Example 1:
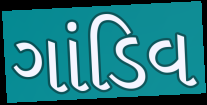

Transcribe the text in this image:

ગાંડિવ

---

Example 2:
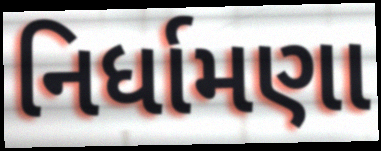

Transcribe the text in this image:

નિર્ધામણા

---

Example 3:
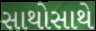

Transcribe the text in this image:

સાથોસાથે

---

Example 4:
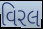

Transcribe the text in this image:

વિરલ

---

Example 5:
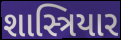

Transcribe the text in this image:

શાસ્ત્રિયાર